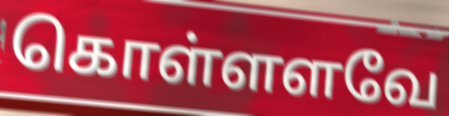
கொள்ளளவே